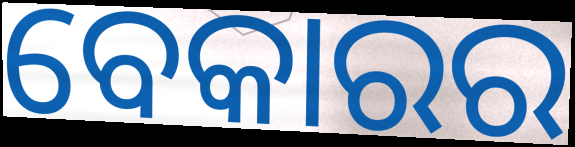
ବେକାରର